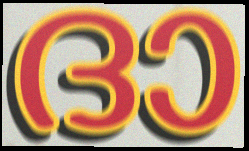
ദാ